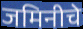
जमिनीचे